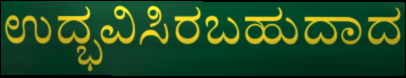
ಉದ್ಭವಿಸಿರಬಹುದಾದ